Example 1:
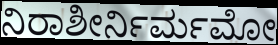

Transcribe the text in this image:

ನಿರಾಶೀರ್ನಿರ್ಮಮೋ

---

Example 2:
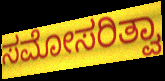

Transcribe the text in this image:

ಸಮೋಸರಿತ್ವಾ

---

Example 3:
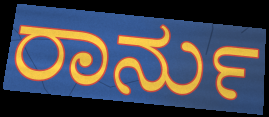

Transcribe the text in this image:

ರಾರ್ನು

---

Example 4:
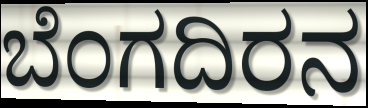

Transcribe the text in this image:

ಬೆಂಗದಿರನ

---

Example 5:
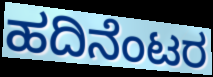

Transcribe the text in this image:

ಹದಿನೆಂಟರ